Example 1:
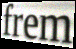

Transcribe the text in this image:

frem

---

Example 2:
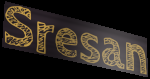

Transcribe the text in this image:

Sresan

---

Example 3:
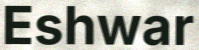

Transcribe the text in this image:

Eshwar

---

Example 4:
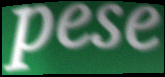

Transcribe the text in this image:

pese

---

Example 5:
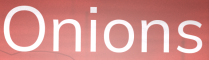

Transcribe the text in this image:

Onions